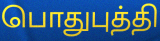
பொதுபுத்தி